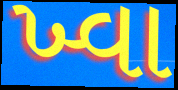
ખ્વા